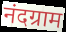
नंदग्राम